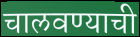
चालवण्याची